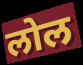
लोल